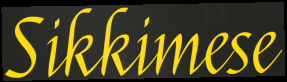
Sikkimese